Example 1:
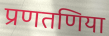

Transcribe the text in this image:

प्रणतणिया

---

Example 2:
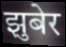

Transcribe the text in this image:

झुबेर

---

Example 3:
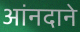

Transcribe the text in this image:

आंनदाने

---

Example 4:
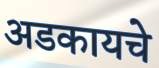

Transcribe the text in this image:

अडकायचे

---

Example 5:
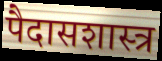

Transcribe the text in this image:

पैदासशास्त्र